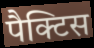
पैक्टिस